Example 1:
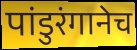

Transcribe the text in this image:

पांडुरंगानेच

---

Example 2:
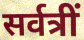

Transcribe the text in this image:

सर्वत्रीं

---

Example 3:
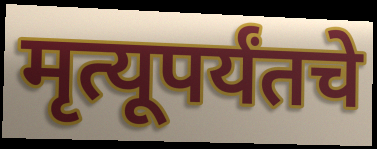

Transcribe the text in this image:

मृत्यूपर्यंतचे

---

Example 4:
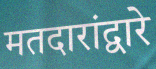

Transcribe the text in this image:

मतदारांद्वारे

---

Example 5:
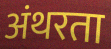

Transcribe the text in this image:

अंथरता